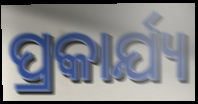
ପ୍ରକାର୍ଯ୍ୟ